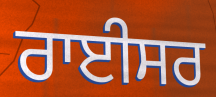
ਰਾਈਸਰ